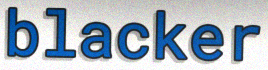
blacker